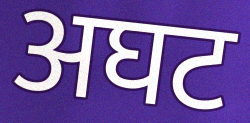
अघट